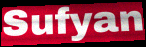
Sufyan